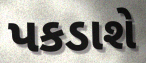
પકડાશે